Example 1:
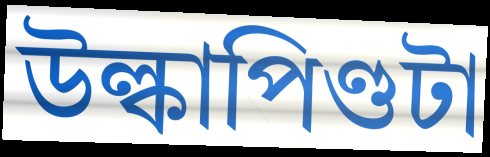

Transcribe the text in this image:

উল্কাপিণ্ডটা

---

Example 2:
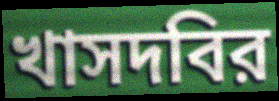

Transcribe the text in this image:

খাসদবির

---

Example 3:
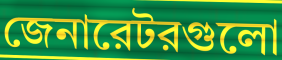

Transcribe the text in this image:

জেনারেটরগুলো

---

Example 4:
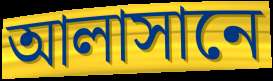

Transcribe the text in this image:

আলাসানে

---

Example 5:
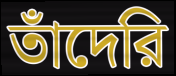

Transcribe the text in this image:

তাঁদেরি